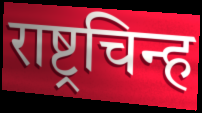
राष्ट्रचिन्ह